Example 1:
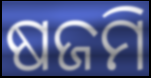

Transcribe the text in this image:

ଷଜମି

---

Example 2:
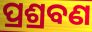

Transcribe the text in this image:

ପ୍ରଶ୍ରବଣ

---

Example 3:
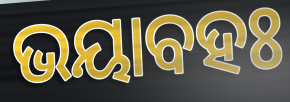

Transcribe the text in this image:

ଭୟାବହଃ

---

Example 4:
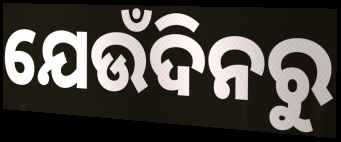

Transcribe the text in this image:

ଯେଉଁଦିନରୁ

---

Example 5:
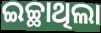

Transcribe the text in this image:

ଇଚ୍ଛାଥିଲା